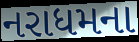
નરાધમના